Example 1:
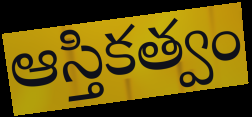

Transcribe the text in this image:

ఆస్తికత్వం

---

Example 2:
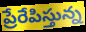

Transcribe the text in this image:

ప్రేరేపిస్తున్న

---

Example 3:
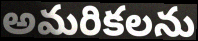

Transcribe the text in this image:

అమరికలను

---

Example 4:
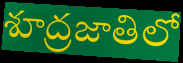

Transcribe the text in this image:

శూద్రజాతిలో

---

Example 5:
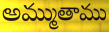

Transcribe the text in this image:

అమ్ముతాము